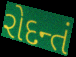
રોદન્તં